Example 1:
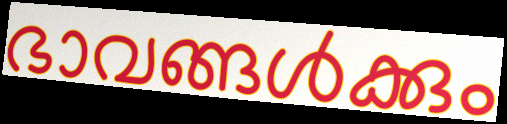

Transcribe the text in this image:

ഭാവങ്ങൾക്കും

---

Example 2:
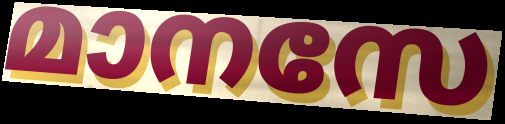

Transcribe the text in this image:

മാനസേ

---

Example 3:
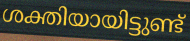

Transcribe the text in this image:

ശക്തിയായിട്ടുണ്ട്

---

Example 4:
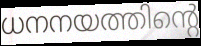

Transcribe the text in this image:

ധനനയത്തിന്റെ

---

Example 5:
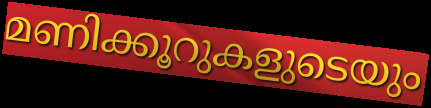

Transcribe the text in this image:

മണിക്കൂറുകളുടെയും